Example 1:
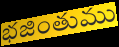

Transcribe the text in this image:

భజింతుము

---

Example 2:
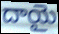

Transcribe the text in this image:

దాయై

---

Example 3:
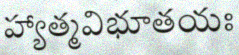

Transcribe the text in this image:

హ్యాత్మవిభూతయః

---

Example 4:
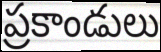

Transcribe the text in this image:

ప్రకాండులు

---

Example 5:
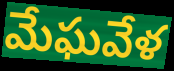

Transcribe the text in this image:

మేఘవేళ